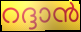
റദ്ദാൻ